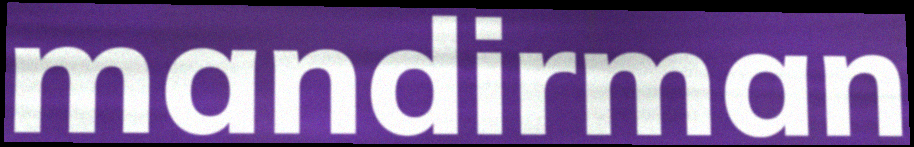
mandirman